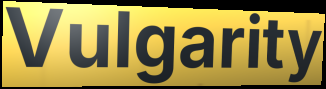
Vulgarity